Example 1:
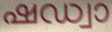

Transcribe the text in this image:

ഷഡ്വാ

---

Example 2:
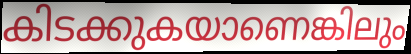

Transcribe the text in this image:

കിടക്കുകയാണെങ്കിലും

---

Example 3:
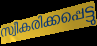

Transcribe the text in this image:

സ്വീകരിക്കപ്പെട്ടു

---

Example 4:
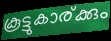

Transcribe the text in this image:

കൂട്ടുകാര്ക്കും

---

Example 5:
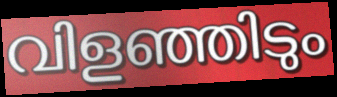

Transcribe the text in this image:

വിളഞ്ഞിടും